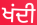
ਖਂਦੀ